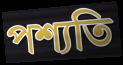
পশ্যতি